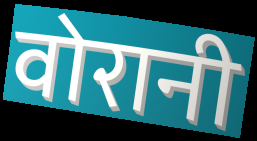
वोरानी